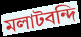
মলাটবন্দি